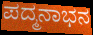
ಪದ್ಮನಾಭನ